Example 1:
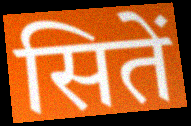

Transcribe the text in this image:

सितें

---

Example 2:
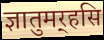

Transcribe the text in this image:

ज्ञातुमर्हसि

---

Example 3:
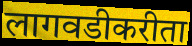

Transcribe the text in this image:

लागवडीकरीता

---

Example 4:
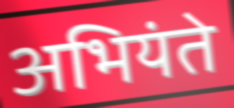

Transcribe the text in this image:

अभियंते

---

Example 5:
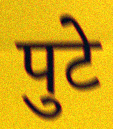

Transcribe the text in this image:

पुटे